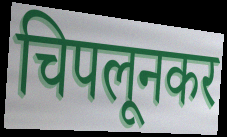
चिपलूनकर